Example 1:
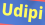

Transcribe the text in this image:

Udipi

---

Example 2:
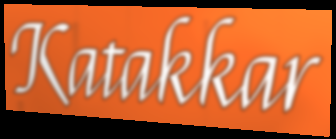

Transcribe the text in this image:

Katakkar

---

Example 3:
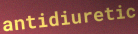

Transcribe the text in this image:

antidiuretic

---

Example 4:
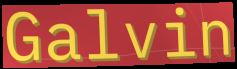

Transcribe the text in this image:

Galvin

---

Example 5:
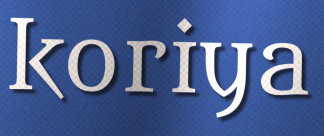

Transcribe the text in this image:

koriya